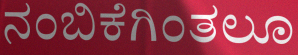
ನಂಬಿಕೆಗಿಂತಲೂ